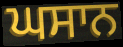
ਘਸਾਨ